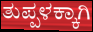
ತುಪ್ಪಳಕ್ಕಾಗಿ